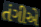
તંગીએ